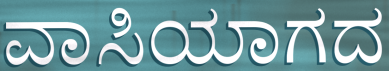
ವಾಸಿಯಾಗದ